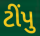
ટીંપુ